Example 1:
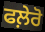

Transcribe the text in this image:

ਫਲ਼ੇਰੋ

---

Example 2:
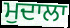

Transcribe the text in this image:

ਮੁਦਾਲਾ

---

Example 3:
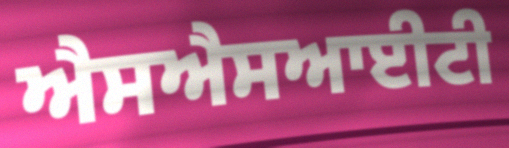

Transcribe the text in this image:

ਐਸਐਸਆਈਟੀ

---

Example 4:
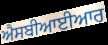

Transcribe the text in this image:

ਐਸਬੀਆਈਆਰ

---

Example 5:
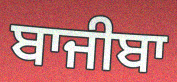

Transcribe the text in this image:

ਬਾਜੀਬਾ